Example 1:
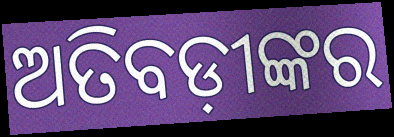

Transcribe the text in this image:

ଅତିବଡ଼ୀଙ୍କର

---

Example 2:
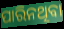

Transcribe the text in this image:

ପାରିନଥିବା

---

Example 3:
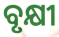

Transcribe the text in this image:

ବୃକ୍ଷୀ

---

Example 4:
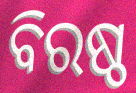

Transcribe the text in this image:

ବିରଷ୍ଠ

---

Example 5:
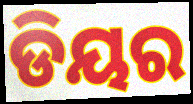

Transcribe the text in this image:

ଡିୟର